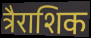
त्रैराशिक